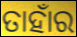
ତାହାଁର